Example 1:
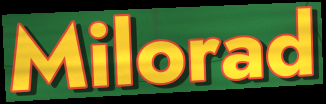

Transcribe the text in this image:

Milorad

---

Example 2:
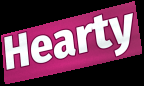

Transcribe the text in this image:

Hearty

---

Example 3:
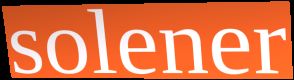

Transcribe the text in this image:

solener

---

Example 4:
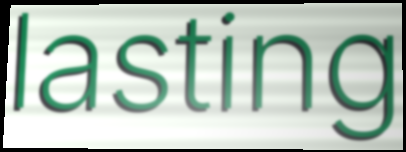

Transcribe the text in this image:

lasting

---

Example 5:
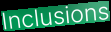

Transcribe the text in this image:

Inclusions